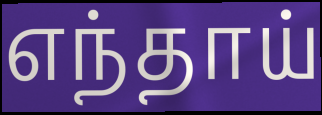
எந்தாய்